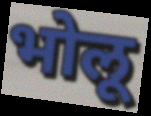
भोलू